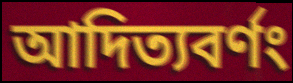
আদিত্যবর্ণং